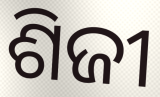
ଶିଜୀ